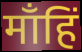
माँहिं